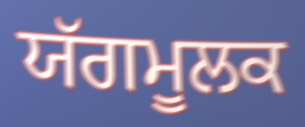
ਯੱਗਮੂਲਕ